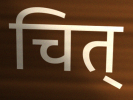
चित्